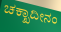
ಚಕ್ಖಾದೀನಂ